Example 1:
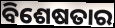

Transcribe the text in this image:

ବିଶେଷତାର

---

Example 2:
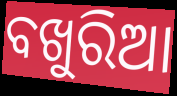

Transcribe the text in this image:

ବଖୁରିଆ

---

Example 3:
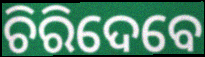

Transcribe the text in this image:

ଚିରିଦେବେ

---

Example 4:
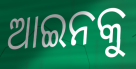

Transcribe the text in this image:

ଆଇନକୁ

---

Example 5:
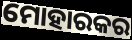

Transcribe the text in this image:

ମୋହାରକର